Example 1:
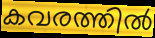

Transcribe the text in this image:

കവരത്തിൽ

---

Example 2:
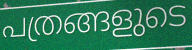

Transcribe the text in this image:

പത്രങ്ങളുടെ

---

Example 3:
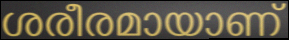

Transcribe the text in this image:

ശരീരമായാണ്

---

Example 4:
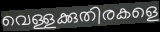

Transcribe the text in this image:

വെള്ളക്കുതിരകളെ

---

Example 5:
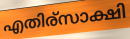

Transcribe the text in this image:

എതിര്സാക്ഷി